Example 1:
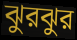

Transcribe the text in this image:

ঝুরঝুর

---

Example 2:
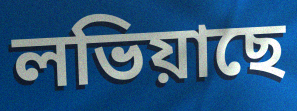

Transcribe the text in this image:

লভিয়াছে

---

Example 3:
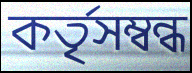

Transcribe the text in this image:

কর্তৃসম্বন্ধ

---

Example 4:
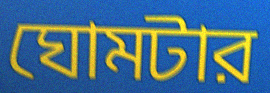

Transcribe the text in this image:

ঘোমটার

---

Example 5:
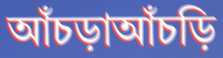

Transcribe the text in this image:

আঁচড়াআঁচড়ি